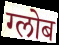
ग्लोब